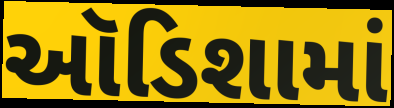
ઑડિશામાં